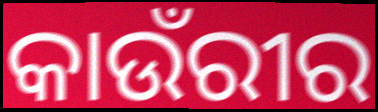
କାଉଁରୀର